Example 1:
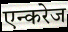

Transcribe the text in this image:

एन्करेज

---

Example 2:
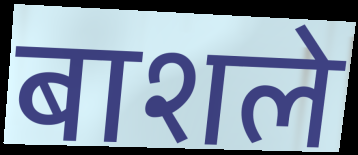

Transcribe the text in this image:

बाशले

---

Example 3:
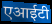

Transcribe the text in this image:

एआईटी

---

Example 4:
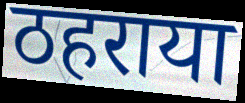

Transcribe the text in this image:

ठहराया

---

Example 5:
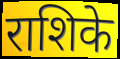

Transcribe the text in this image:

राशिके